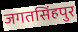
जगतसिंहपुर